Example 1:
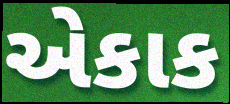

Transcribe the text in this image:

એકાક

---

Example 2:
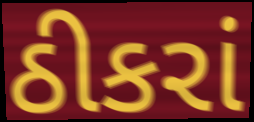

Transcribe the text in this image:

ઠીકરાં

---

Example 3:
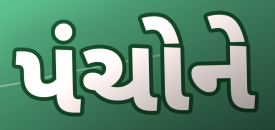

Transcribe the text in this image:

પંચોને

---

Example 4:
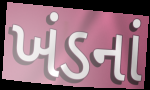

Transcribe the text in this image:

ખંડનાં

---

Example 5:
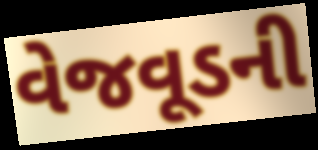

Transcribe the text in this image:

વેજવૂડની